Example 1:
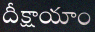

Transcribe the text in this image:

దీక్షాయాం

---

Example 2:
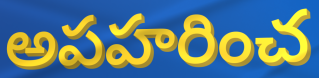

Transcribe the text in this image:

అపహరించ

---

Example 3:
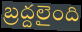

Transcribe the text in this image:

బ్రద్దలైంది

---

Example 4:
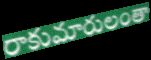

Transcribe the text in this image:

రాకుమారులంతా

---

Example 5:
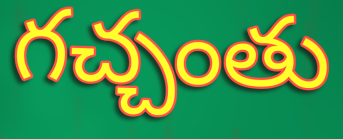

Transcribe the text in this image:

గచ్చంతు